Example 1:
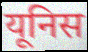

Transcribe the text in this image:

यूनिस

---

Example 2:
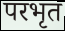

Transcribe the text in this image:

परभृत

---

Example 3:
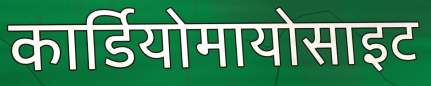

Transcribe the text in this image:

कार्डियोमायोसाइट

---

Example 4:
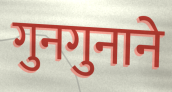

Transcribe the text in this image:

गुनगुनाने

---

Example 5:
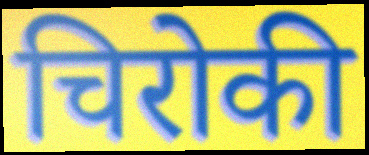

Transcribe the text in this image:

चिरोकी